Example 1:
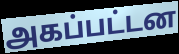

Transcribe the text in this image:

அகப்பட்டன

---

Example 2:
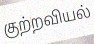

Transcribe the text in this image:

குற்றவியல்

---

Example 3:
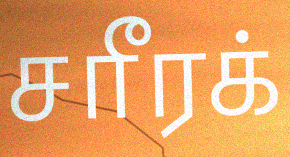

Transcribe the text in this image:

சரீரக்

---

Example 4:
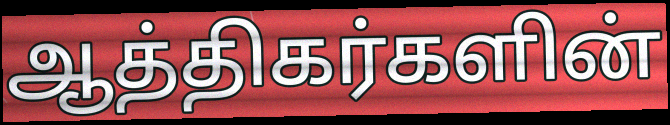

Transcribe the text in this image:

ஆத்திகர்களின்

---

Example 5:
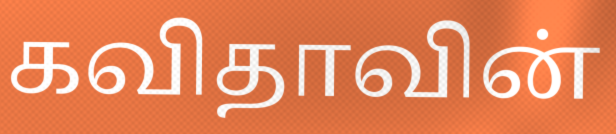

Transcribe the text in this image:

கவிதாவின்